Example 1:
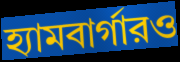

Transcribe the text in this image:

হ্যামবার্গারও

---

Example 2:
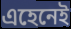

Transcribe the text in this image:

এহেনেই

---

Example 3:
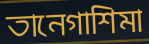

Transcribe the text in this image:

তানেগাশিমা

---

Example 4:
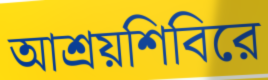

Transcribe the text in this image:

আশ্রয়শিবিরে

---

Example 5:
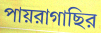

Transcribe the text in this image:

পায়রাগাছির